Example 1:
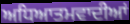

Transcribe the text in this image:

ਅਧਿਆਤਮਵਾਦੀਆਂ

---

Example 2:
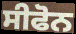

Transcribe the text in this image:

ਸੀਫੋਨ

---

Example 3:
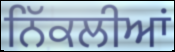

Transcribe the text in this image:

ਨਿੱਕਲੀਆਂ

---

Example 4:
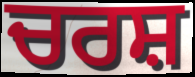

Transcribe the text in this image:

ਚਰਸ਼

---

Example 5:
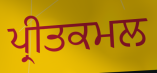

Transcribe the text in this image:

ਪ੍ਰੀਤਕਮਲ